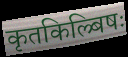
कृतकिल्बिषः